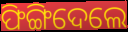
ଫିଙ୍ଗିଦେଲେ